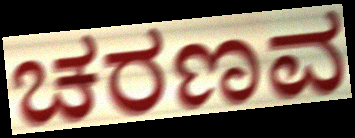
ಚರಣವ